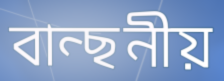
বান্ছনীয়